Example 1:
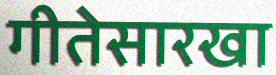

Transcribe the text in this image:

गीतेसारखा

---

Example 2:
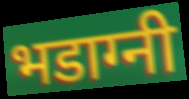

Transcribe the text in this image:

भडाग्नी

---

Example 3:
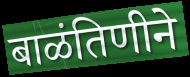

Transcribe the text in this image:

बाळंतिणीने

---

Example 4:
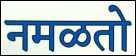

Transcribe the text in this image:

नमळतो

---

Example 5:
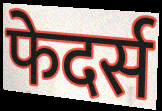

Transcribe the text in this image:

फेदर्स